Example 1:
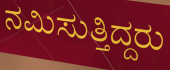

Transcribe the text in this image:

ನಮಿಸುತ್ತಿದ್ದರು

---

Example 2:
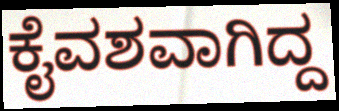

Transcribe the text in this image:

ಕೈವಶವಾಗಿದ್ದ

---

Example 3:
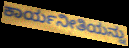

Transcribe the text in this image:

ಕಾರ್ಯನೀತಿಯನ್ನು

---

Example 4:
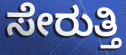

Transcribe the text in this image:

ಸೇರುತ್ತಿ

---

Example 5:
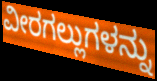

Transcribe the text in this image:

ವೀರಗಲ್ಲುಗಳನ್ನು